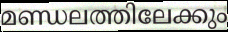
മണ്ഡലത്തിലേക്കും